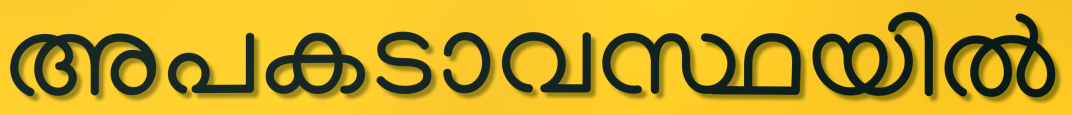
അപകടാവസ്ഥയിൽ